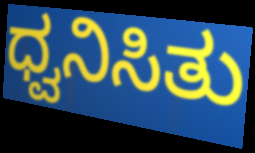
ಧ್ವನಿಸಿತು